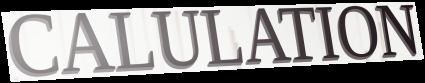
CALULATION